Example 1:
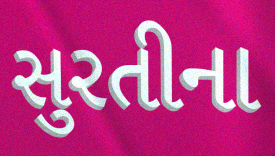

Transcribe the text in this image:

સુરતીના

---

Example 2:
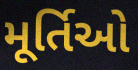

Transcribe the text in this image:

મૂર્તિઓ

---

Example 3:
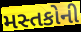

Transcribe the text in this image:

મસ્તકોની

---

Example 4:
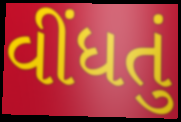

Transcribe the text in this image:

વીંધતું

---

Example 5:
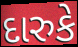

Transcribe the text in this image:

દારુકે